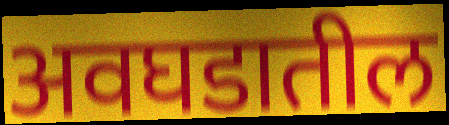
अवघडातील